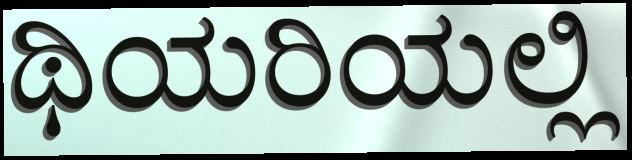
ಥಿಯರಿಯಲ್ಲಿ